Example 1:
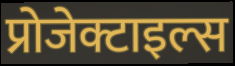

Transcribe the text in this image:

प्रोजेक्टाइल्स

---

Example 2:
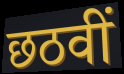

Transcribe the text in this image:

छठवीं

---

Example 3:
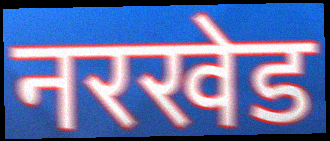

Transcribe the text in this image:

नरखेड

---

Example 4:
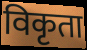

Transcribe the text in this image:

विकृता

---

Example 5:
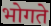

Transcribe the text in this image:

भोगते